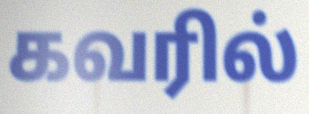
கவரில்